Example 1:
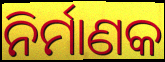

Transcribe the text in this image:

ନିର୍ମାଣକ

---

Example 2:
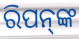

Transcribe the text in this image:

ରିପନ୍‍ଙ୍କ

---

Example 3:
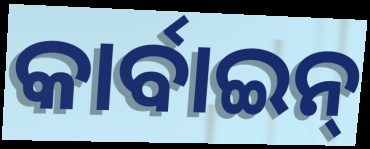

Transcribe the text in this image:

କାର୍ବାଇନ୍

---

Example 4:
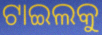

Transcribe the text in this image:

ଟାଇଲକୁ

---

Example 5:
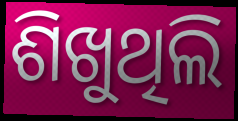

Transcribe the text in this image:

ଶିଖୁଥିଲି